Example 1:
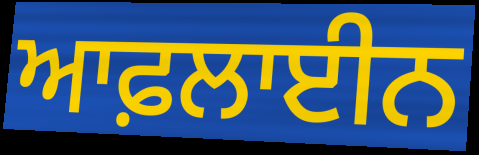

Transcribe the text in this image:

ਆਫ਼ਲਾਈਨ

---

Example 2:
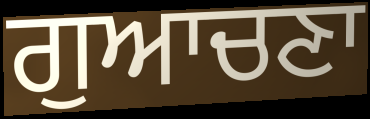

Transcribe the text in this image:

ਗੁਆਚਣਾ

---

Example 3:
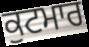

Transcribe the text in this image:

ਕੁਟਮਾਰ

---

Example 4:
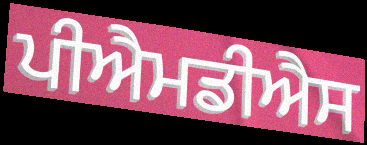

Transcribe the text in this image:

ਪੀਐਮਡੀਐਸ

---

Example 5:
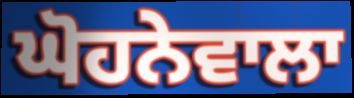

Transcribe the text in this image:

ਘੋਹਨੇਵਾਲਾ